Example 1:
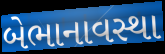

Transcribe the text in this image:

બેભાનાવસ્થા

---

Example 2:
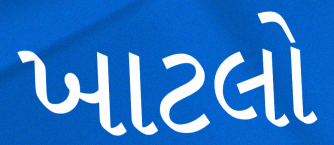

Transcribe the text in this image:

ખાટલો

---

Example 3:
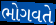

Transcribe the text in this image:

ભોગવતે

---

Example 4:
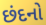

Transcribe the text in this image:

છંદનો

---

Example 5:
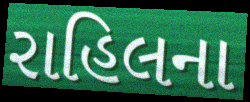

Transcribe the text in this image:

રાહિલના